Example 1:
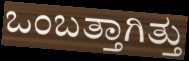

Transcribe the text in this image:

ಒಂಬತ್ತಾಗಿತ್ತು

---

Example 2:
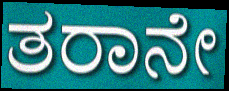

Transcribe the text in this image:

ತರಾನೇ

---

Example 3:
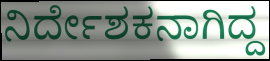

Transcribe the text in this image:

ನಿರ್ದೇಶಕನಾಗಿದ್ದ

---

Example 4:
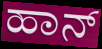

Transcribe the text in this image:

ಹಾನ್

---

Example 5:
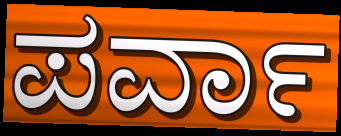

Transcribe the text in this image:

ಪರ್ವಾ